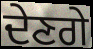
ਦੇਣਗੇ